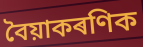
বৈয়াকৰণিক